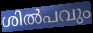
ശിൽപവും